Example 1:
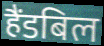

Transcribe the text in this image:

हैंडबिल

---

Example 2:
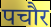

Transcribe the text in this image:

पचौर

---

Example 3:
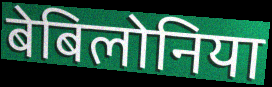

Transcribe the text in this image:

बेबिलोनिया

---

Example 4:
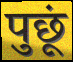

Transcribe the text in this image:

पुछूं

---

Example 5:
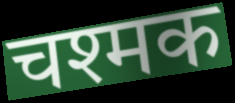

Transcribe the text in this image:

चश्मक